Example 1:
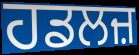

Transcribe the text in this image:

ਹਡਲਜ਼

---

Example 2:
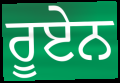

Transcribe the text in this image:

ਰੂਏਨ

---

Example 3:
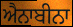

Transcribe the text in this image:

ਐਨਾਬੀਨਾ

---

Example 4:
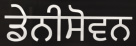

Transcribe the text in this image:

ਡੇਨੀਸੋਵਨ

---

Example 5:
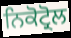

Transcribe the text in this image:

ਨਿਕੋਟ੍ਰੋਲ